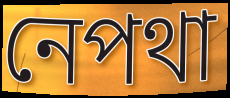
নেপথা